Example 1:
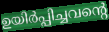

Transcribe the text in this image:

ഉയിർപ്പിച്ചവന്റെ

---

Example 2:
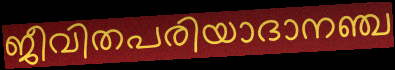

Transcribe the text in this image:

ജീവിതപരിയാദാനഞ്ച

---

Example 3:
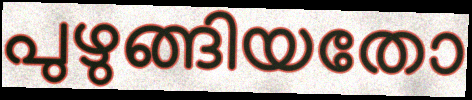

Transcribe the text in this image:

പുഴുങ്ങിയതോ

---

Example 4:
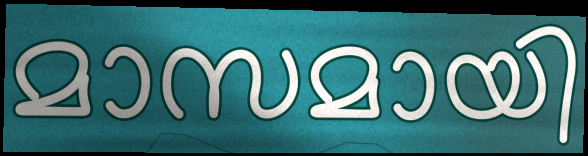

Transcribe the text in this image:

മാസമായി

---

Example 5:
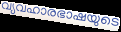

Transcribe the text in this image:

വ്യവഹാരഭാഷയുടെ